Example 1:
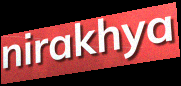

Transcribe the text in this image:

nirakhya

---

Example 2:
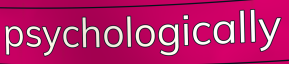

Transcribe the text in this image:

psychologically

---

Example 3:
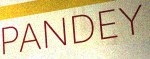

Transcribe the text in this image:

PANDEY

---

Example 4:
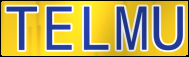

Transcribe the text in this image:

TELMU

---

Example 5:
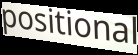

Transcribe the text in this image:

positional